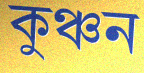
কুঞ্চন